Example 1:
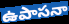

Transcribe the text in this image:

ఉపాసనా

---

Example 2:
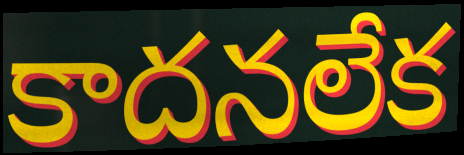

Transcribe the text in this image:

కాదనలేక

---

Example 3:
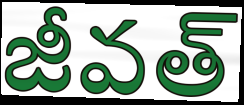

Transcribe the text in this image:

జీవత్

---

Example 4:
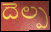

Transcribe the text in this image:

దెల్ప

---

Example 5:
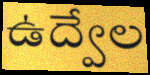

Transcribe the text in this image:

ఉద్వేల